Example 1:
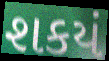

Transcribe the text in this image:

શકયં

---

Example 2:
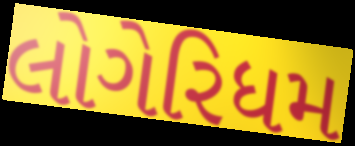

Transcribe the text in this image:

લોગેરિધમ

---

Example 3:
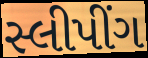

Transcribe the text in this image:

સ્લીપીંગ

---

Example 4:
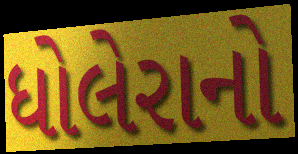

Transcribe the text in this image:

ધોલેરાનો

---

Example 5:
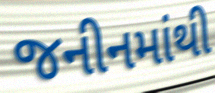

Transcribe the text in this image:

જનીનમાંથી